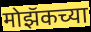
मोझॅकच्या